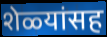
शेळ्यांसह